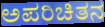
ಅಪರಿಚಿತನ